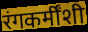
रंगकर्मींशी